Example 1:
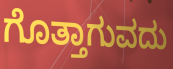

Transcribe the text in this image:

ಗೊತ್ತಾಗುವದು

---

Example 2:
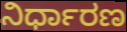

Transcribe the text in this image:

ನಿರ್ಧಾರಣ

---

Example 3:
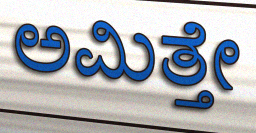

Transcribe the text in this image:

ಅಮಿತ್ತೇ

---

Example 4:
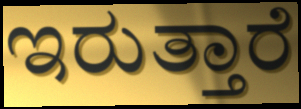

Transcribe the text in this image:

ಇರುತ್ತಾರೆ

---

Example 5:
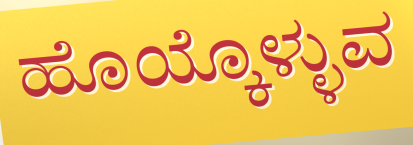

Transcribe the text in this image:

ಹೊಯ್ಕೊಳ್ಳುವ